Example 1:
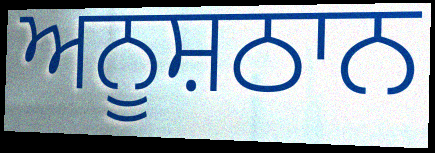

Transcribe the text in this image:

ਅਨੂਸ਼ਠਾਨ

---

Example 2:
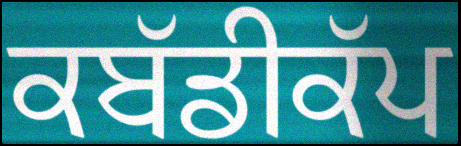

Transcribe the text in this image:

ਕਬੱਡੀਕੱਪ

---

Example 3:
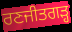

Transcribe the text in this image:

ਰਣਜੀਤਗੜ੍ਹ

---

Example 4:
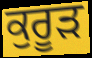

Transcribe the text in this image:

ਕੁਰੂੜ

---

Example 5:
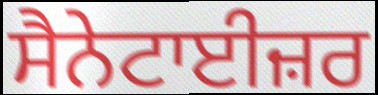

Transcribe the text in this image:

ਸੈਨੇਟਾਈਜ਼ਰ